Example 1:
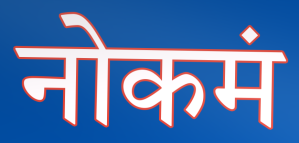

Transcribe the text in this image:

नोकमं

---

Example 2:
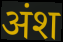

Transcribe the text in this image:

अंश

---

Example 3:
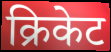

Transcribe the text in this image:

क्रिकेट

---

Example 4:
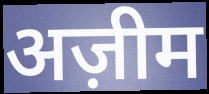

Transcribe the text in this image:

अज़ीम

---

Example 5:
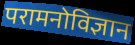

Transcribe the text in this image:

परामनोविज्ञान